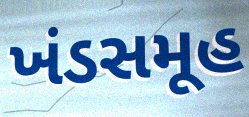
ખંડસમૂહ